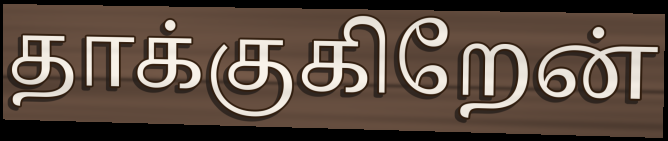
தாக்குகிறேன்